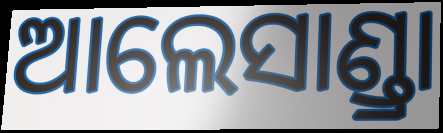
ଆଲେସାଣ୍ଡ୍ରା